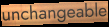
unchangeable